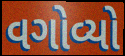
વગોવ્યો